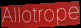
Allotrope